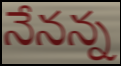
నేనన్న